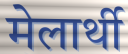
मेलार्थी